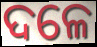
ଦଳେ